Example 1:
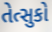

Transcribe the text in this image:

તેત્સુકો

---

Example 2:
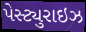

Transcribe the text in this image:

પેસ્ટ્યુરાઇઝ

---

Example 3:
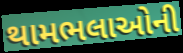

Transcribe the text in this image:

થામભલાઓની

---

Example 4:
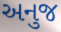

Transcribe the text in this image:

અનુજ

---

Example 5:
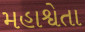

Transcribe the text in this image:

મહાશ્વેતા